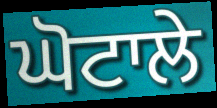
ਘੋਟਾਲੇ